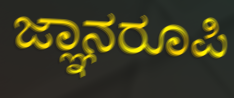
ಜ್ಞಾನರೂಪಿ